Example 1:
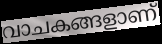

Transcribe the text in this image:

വാചകങ്ങളാണ്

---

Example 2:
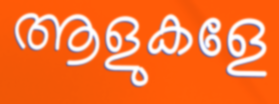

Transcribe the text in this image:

ആളുകളേ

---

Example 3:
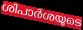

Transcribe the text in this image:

ശിപാർശയുടെ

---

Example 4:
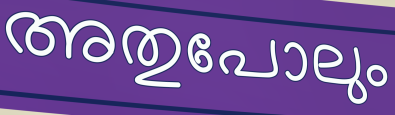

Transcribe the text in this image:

അതുപോലും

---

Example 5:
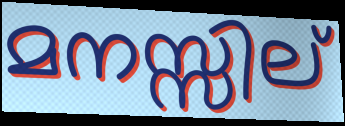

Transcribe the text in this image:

മനസ്സില്